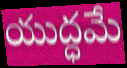
యుద్ధమే